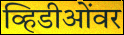
व्हिडीओंवर